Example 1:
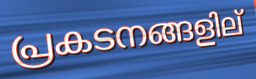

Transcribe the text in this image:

പ്രകടനങ്ങളില്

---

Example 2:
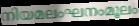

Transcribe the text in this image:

നിയമലംഘനംമൂലം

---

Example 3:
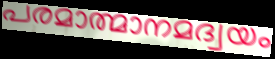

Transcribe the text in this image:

പരമാത്മാനമദ്വയം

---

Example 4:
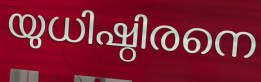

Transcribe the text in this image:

യുധിഷ്ഠിരനെ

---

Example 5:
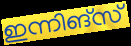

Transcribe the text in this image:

ഇന്നിങ്സ്